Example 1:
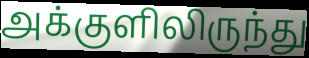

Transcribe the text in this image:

அக்குளிலிருந்து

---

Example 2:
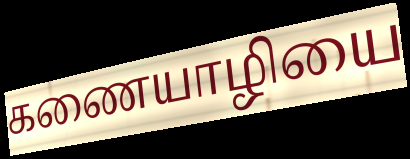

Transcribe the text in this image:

கணையாழியை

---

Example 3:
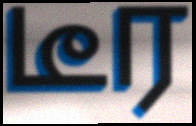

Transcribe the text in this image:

டீர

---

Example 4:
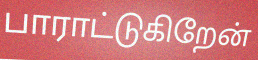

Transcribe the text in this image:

பாராட்டுகிறேன்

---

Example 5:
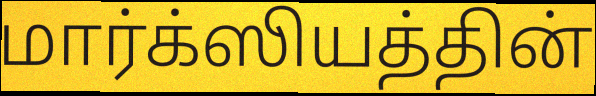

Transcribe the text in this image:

மார்க்ஸியத்தின்